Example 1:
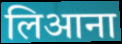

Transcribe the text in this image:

लिआना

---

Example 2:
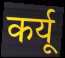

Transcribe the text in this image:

कर्यू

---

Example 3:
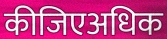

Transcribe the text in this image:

कीजिएअधिक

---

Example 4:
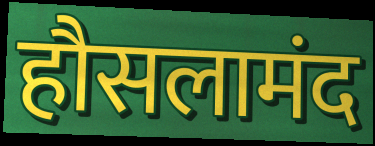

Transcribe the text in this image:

हौसलामंद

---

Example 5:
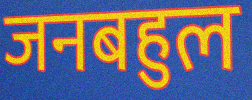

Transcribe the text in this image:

जनबहुल